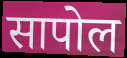
सापोल